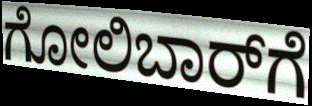
ಗೋಲಿಬಾರ್‌ಗೆ